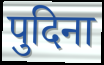
पुदिना